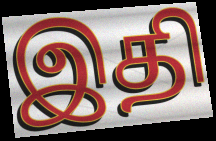
இதி